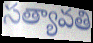
సత్యావతి